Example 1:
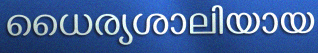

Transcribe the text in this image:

ധൈര്യശാലിയായ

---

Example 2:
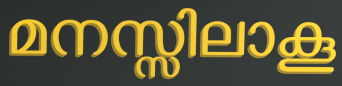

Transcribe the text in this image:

മനസ്സിലാകൂ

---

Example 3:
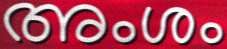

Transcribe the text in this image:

അംശം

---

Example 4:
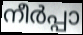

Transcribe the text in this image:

നീർപ്പാ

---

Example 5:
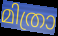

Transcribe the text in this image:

മിത്രാ